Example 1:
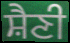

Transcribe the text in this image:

ਸ਼ੈਣੀ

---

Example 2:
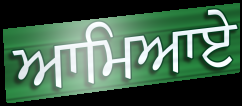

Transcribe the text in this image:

ਆਮਿਆਏ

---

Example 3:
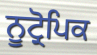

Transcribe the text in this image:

ਨੂਟ੍ਰੋਪਿਕ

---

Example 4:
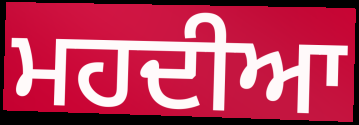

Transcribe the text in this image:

ਮਹਦੀਆ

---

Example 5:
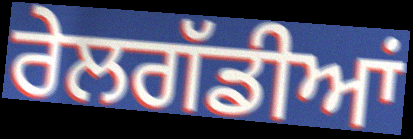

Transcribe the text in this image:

ਰੇਲਗੱਡੀਆਂ